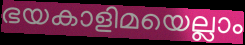
ഭയകാളിമയെല്ലാം